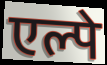
एल्पे